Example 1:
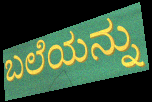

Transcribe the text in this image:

ಬಲೆಯನ್ನು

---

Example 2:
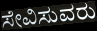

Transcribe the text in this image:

ಸೇವಿಸುವರು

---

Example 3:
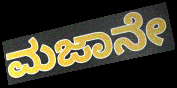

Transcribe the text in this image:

ಮಜಾನೇ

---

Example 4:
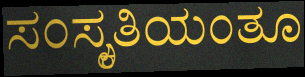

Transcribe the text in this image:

ಸಂಸ್ಕೃತಿಯಂತೂ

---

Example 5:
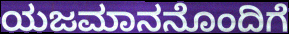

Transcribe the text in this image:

ಯಜಮಾನನೊಂದಿಗೆ